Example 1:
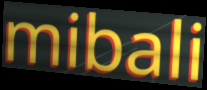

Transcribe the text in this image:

mibali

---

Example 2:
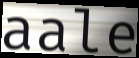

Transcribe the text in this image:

aale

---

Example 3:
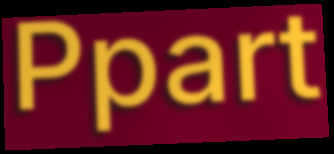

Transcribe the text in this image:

Ppart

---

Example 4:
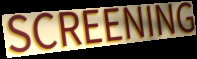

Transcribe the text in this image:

SCREENING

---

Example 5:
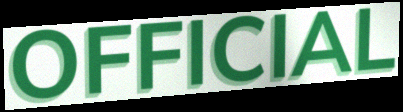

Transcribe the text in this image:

OFFICIAL